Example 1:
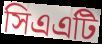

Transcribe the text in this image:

সিএএটি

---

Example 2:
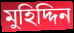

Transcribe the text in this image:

মুহিদ্দিন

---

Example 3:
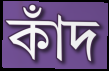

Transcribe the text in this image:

কাঁদ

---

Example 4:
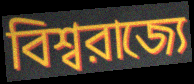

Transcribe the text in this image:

বিশ্বরাজ্যে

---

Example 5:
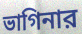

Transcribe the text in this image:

ভাগিনার